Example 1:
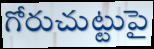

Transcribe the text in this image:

గోరుచుట్టుపై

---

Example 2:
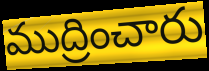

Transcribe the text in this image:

ముద్రించారు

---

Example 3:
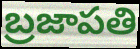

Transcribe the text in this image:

బ్రజాపతి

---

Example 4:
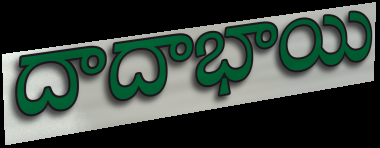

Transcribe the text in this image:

దాదాభాయి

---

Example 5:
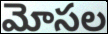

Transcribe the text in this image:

మోసల